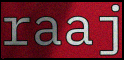
raaj